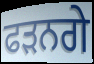
ਫੜਨਗੇ